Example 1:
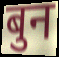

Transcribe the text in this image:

बुन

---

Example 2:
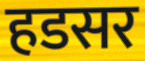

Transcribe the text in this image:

हडसर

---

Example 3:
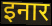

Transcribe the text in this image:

इनार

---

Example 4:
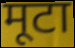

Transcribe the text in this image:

मूटा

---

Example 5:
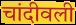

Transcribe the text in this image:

चांदीवली